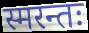
स्मरन्तः